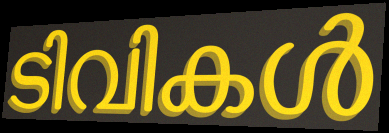
ടിവികൾ